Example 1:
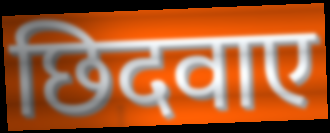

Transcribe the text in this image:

छिदवाए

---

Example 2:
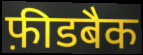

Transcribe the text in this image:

फ़ीडबैक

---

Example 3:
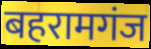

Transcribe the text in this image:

बहरामगंज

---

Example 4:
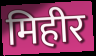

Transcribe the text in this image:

मिहीर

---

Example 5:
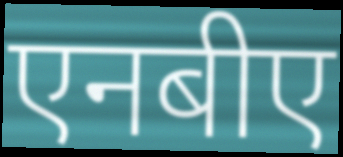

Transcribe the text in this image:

एनबीए